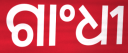
ଗାଂଧୀ